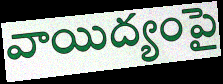
వాయిద్యంపై